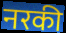
नरकी